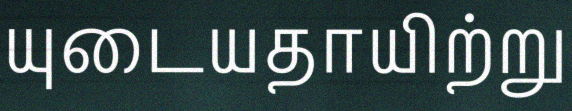
யுடையதாயிற்று